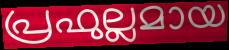
പ്രഫുല്ലമായ